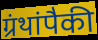
ग्रंथांपैकी